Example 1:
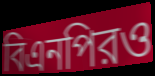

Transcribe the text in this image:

বিএনপিরও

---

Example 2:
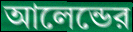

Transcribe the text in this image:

আলেন্ডের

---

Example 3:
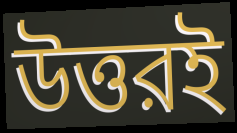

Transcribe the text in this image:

উত্তরই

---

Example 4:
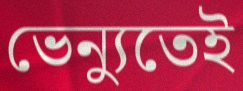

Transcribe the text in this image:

ভেন্যুতেই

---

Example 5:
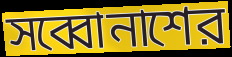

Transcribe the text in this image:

সব্বোনাশের